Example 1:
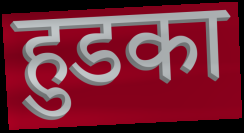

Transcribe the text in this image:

हुडका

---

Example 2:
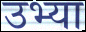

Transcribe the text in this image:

उभ्या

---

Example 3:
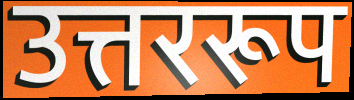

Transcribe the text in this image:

उत्तररूप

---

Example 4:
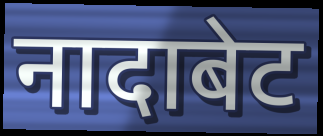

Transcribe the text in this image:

नादाबेट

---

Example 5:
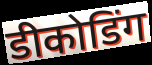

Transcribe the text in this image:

डीकोडिंग